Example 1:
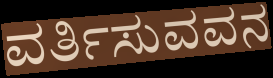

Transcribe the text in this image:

ವರ್ತಿಸುವವನ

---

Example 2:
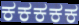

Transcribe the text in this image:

ಕಕಕಕಕ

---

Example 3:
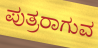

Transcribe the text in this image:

ಪುತ್ರರಾಗುವ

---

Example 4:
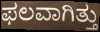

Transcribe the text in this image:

ಫಲವಾಗಿತ್ತು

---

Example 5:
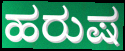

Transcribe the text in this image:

ಹರುಷ